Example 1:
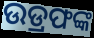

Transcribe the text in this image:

ଉଡ୍ରଫଙ୍କ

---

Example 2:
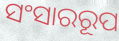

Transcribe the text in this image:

ସଂସାରରୂପ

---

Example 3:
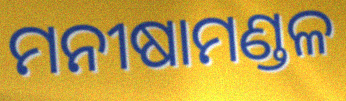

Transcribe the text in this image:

ମନୀଷାମଣ୍ଡଳ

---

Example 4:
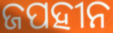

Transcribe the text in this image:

ଜପହୀନ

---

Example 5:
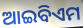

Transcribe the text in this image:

ଆଇବିଏମ